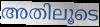
അതിലൂടെ